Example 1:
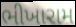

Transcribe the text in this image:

ભીખારામ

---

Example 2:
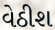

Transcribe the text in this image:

વેઠીશ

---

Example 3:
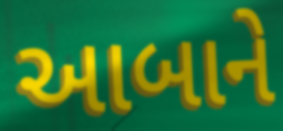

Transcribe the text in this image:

આબાને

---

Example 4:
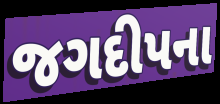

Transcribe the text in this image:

જગદીપના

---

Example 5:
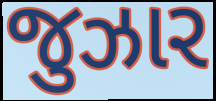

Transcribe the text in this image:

જુઝાર